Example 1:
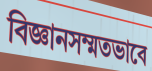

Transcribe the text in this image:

বিজ্ঞানসম্মতভাবে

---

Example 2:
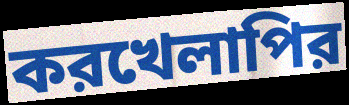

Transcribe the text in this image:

করখেলাপির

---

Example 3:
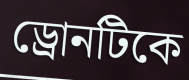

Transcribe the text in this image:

ড্রোনটিকে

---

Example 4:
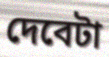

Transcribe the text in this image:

দেবেটা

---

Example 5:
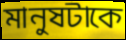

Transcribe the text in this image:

মানুষটাকে